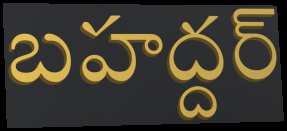
బహద్దర్